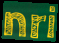
nri